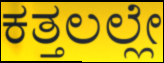
ಕತ್ತಲಲ್ಲೇ